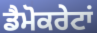
ਡੈਮੋਕਰੇਟਾਂ